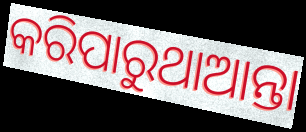
କରିପାରୁଥାଆନ୍ତା